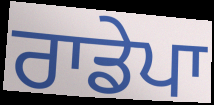
ਰਾਡੇਪਾ